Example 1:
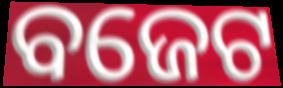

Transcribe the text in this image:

ବଜେଟ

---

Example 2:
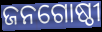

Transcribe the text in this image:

ଜନଗୋଷ୍ଠୀ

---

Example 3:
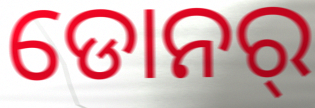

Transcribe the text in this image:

ଡୋନର୍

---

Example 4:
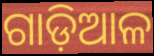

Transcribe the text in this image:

ଗାଡ଼ିଆଳ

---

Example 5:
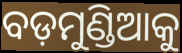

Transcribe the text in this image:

ବଡ଼ମୁଣ୍ଡିଆକୁ